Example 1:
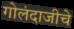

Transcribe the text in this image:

गोलंदाजीचे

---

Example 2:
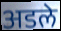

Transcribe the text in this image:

अडले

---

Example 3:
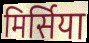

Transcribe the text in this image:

मिर्सिया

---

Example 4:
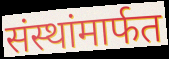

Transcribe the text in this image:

संस्थांमार्फत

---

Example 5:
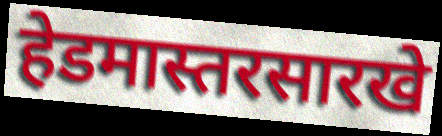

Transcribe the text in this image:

हेडमास्तरसारखे